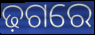
ଢ଼ଗରେ